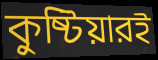
কুষ্টিয়ারই